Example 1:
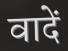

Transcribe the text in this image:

वादें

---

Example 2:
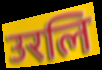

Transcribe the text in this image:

उरलि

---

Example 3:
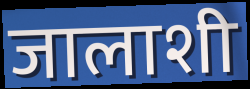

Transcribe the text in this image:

जालाशी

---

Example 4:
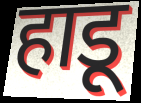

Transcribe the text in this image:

हाडू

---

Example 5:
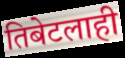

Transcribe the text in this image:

तिबेटलाही